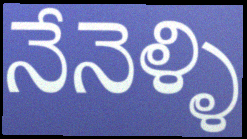
నేనెళ్ళి